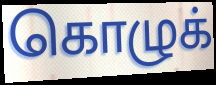
கொழுக்